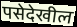
पसेदेखील